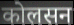
कोलसन